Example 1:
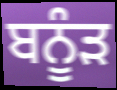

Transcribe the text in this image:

ਬਨੂੰੜ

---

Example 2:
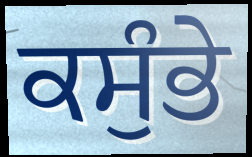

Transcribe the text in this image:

ਕਸੁੰਭੇ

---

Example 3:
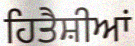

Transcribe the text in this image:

ਹਿਤੈਸ਼ੀਆਂ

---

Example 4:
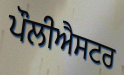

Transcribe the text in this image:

ਪੌਲੀਐਸਟਰ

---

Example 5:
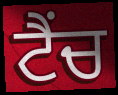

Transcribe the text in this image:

ਟੈਂਚ